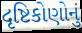
દૃષ્ટિકોણોનું